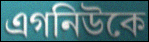
এগনিউকে